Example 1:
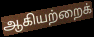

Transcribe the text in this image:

ஆகியற்றைக்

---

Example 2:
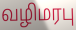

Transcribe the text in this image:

வழிமரபு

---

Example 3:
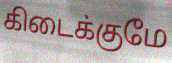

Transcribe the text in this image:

கிடைக்குமே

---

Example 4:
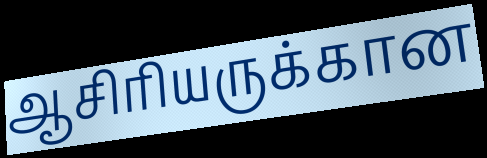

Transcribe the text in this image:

ஆசிரியருக்கான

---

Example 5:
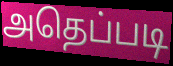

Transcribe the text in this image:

அதெப்படி